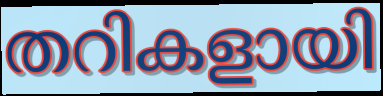
തറികളായി